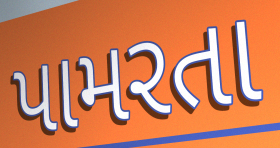
પામરતા